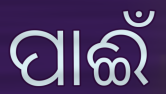
ପାଈଁ